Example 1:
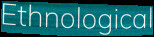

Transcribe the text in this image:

Ethnological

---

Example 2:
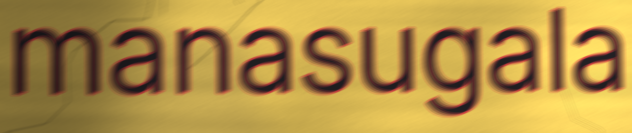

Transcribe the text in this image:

manasugala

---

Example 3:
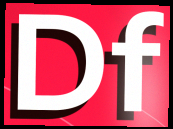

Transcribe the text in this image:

Df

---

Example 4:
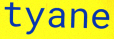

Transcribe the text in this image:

tyane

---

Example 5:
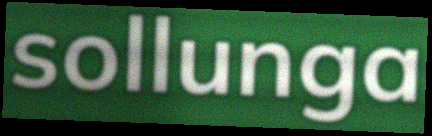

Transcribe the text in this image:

sollunga